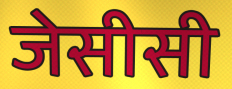
जेसीसी